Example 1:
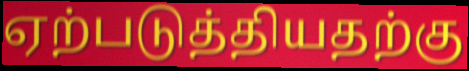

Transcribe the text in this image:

ஏற்படுத்தியதற்கு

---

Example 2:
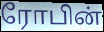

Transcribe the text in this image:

ரோபின்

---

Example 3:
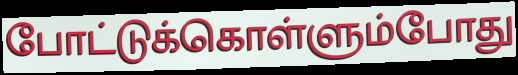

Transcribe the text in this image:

போட்டுக்கொள்ளும்போது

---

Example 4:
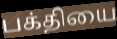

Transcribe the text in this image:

பக்தியை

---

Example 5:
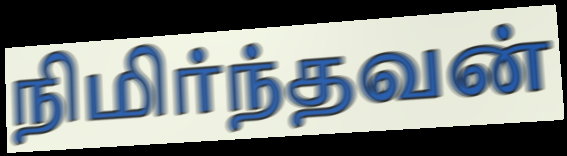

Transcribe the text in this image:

நிமிர்ந்தவன்